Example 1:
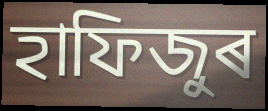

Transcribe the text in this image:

হাফিজুৰ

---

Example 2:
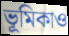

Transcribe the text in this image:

ভূমিকাও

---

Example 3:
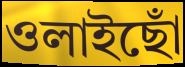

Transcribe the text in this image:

ওলাইছোঁ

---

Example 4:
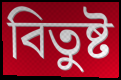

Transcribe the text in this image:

বিতুষ্ট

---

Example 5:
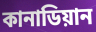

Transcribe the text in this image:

কানাডিয়ান